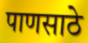
पाणसाठे